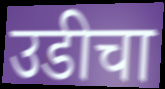
उडीचा